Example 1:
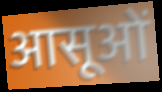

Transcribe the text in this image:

आसूओं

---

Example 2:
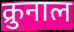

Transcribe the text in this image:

क्रुनाल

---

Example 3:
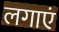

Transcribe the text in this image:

लगाएं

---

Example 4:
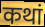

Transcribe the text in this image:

कथां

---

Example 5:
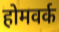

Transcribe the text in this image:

होमवर्क